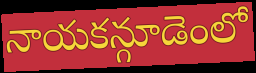
నాయకన్గూడెంలో